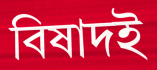
বিষাদই